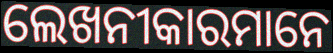
ଲେଖନୀକାରମାନେ